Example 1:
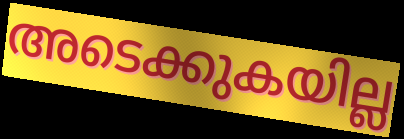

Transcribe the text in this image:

അടെക്കുകയില്ല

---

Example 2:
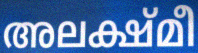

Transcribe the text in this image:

അലക്ഷ്മീ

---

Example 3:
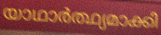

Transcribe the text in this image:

യാഥാർത്ഥ്യമാക്കി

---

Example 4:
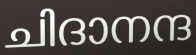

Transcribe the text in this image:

ചിദാനന്ദ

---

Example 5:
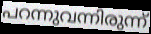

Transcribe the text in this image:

പറന്നുവന്നിരുന്ന്